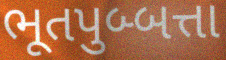
ભૂતપુબ્બત્તા